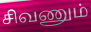
சிவணும்